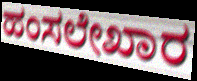
ಹಂಸಲೇಖಾರ